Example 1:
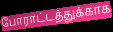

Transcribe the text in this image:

போராட்டத்துக்காக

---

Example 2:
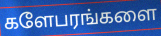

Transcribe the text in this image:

களேபரங்களை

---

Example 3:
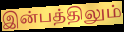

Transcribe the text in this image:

இன்பத்திலும்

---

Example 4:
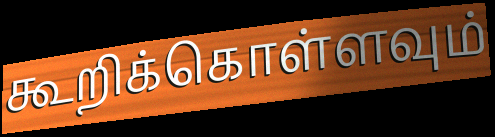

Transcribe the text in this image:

கூறிக்கொள்ளவும்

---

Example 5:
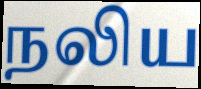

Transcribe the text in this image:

நலிய